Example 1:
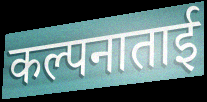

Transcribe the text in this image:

कल्पनाताई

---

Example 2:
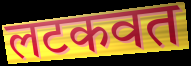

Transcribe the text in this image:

लटकवत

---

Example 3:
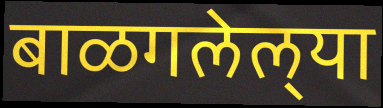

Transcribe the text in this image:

बाळगलेल्या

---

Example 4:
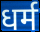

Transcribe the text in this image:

धर्म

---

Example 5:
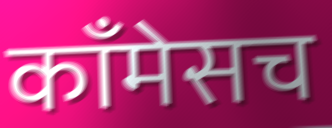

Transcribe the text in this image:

कॉंमेसच